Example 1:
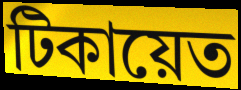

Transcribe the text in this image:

টিকায়েত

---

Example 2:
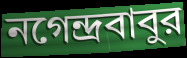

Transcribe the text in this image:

নগেন্দ্রবাবুর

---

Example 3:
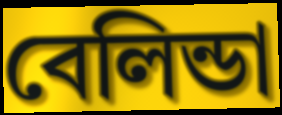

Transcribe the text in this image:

বেলিন্ডা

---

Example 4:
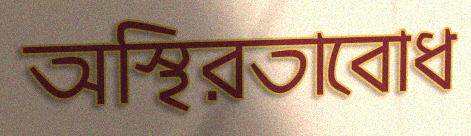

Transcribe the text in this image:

অস্থিরতাবোধ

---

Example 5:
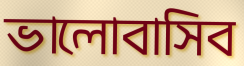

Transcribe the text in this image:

ভালোবাসিব